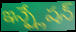
ఇన్ఫ్లేషన్